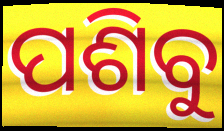
ପଶିବୁ